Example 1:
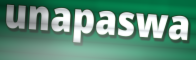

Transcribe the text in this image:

unapaswa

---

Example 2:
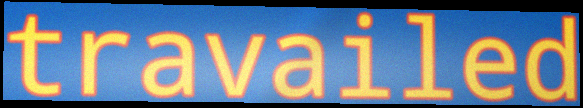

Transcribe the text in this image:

travailed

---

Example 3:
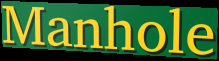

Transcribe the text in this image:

Manhole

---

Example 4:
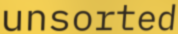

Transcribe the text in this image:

unsorted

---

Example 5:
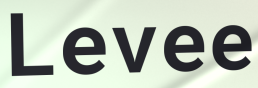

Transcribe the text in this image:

Levee